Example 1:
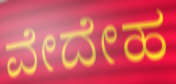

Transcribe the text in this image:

ವೇದೇಹ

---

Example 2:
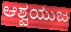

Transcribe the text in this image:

ಆಶ್ವಯುಜ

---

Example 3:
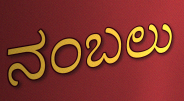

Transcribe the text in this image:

ನಂಬಲು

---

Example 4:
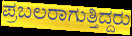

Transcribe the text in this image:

ಪ್ರಬಲರಾಗುತ್ತಿದ್ದರು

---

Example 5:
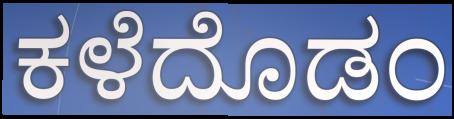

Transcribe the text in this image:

ಕಳೆದೊಡಂ